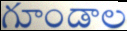
గూండాల